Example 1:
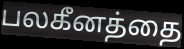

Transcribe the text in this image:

பலகீனத்தை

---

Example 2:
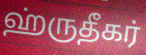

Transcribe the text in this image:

ஹ்ருதீகர்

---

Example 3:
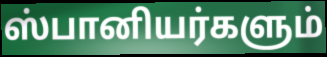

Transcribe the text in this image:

ஸ்பானியர்களும்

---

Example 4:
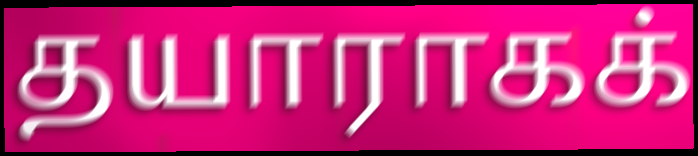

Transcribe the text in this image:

தயாராகக்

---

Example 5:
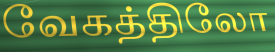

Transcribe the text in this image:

வேகத்திலோ